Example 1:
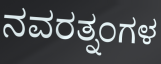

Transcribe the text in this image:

ನವರತ್ನಂಗಳ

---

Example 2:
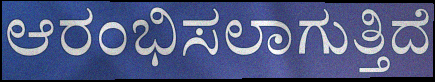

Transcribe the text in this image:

ಆರಂಭಿಸಲಾಗುತ್ತಿದೆ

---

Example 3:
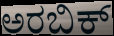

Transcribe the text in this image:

ಅರಬಿಕ್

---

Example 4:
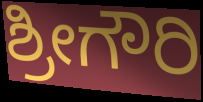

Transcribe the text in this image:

ಶ್ರೀಗೌರಿ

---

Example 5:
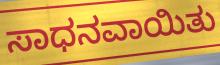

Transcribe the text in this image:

ಸಾಧನವಾಯಿತು